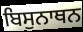
ਬਿਸੁਨਾਥਨ